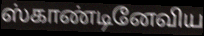
ஸ்காண்டினேவிய